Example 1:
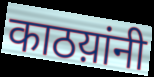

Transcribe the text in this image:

काठय़ांनी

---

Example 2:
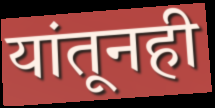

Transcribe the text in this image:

यांतूनही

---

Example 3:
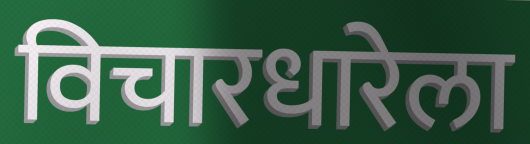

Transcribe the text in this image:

विचारधारेला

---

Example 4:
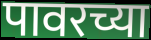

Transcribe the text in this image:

पावरच्या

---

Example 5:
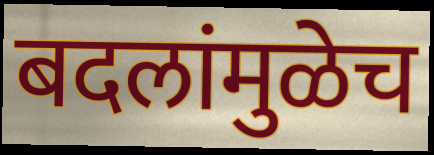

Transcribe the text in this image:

बदलांमुळेच